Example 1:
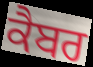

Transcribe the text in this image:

ਕੈਬਰ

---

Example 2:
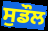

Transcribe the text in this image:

ਸੁਡੌਲ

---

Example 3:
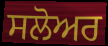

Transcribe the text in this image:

ਸਲੋਅਰ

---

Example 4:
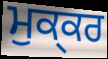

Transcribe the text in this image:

ਮੁਕ੍ਕਰ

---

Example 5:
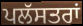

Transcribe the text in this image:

ਪਲੱਸਤਰਾਂ